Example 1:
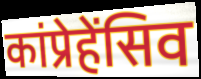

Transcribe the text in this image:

कांप्रेहेंसिव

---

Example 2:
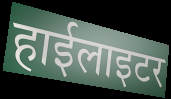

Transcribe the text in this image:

हाईलाइटर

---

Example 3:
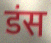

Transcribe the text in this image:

डंस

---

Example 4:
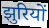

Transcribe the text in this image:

झुरियों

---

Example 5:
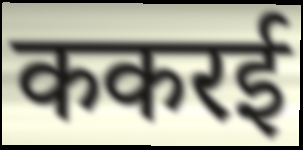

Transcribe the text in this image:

ककरई